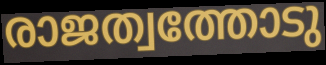
രാജത്വത്തോടു